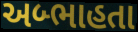
અબ્ભાહતા